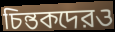
চিন্তকদেরও